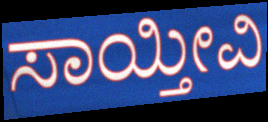
ಸಾಯ್ತೀವಿ